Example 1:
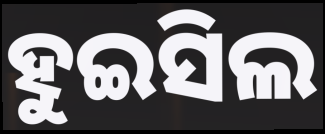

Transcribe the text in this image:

ହୁଇସିଲ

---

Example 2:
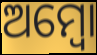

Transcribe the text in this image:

ଅମ୍ୱୋ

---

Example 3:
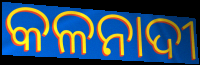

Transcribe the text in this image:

କଳନାଦୀ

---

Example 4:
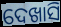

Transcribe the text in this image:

ଦେଖାସି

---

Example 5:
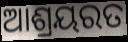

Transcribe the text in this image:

ଆଶ୍ରୟରତ